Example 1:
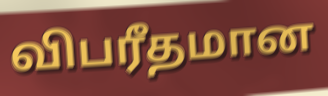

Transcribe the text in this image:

விபரீதமான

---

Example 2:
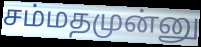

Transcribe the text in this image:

சம்மதமுன்னு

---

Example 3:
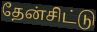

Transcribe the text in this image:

தேன்சிட்டு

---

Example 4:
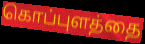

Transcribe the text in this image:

கொப்புளத்தை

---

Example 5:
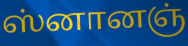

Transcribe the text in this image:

ஸ்னானஞ்